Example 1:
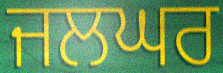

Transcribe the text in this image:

ਜਲਘਰ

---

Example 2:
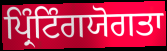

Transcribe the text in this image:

ਪ੍ਰਿੰਟਿੰਗਯੋਗਤਾ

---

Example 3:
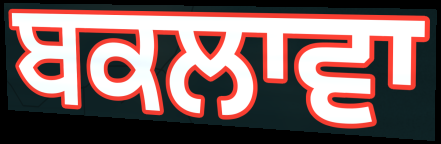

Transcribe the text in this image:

ਬਕਲਾਵਾ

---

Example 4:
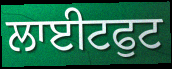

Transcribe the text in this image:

ਲਾਈਟਫੁਟ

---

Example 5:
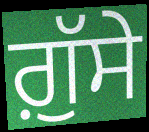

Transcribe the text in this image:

ਗ਼ੁੱਸੇ